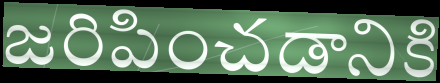
జరిపించడానికి